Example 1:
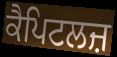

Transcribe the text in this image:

ਕੈਪਿਟਲਜ਼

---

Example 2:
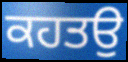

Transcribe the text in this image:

ਕਹਤਉ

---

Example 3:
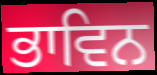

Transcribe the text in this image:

ਭਾਵਿਨ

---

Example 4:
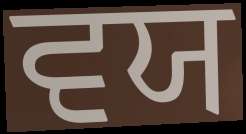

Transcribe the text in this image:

ਵਯ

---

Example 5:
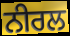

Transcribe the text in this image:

ਨੀਰਲ